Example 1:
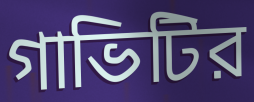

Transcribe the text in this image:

গাভিটির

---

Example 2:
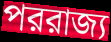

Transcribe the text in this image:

পররাজ্য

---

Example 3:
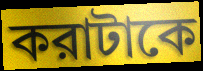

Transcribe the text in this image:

করাটাকে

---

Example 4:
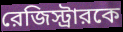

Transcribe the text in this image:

রেজিস্ট্রারকে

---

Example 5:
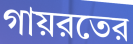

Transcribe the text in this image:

গায়রতের